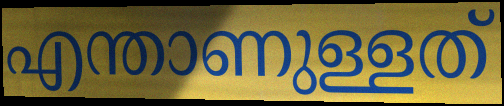
എന്താണുള്ളത്